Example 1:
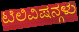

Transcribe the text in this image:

ಟೆಲಿವಿಷನ್ಗಳು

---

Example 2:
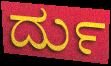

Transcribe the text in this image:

ರ್ದು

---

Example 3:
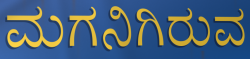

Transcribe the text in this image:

ಮಗನಿಗಿರುವ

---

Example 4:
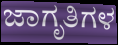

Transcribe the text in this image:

ಜಾಗೃತಿಗಳ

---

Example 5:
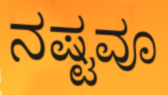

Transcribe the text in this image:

ನಷ್ಟವೂ